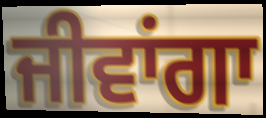
ਜੀਵਾਂਗਾ